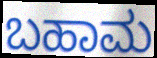
ಬಹಾಮ